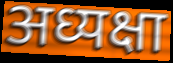
अध्यक्षा